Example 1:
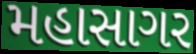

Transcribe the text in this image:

મહાસાગર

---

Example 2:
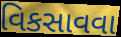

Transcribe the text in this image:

વિકસાવવા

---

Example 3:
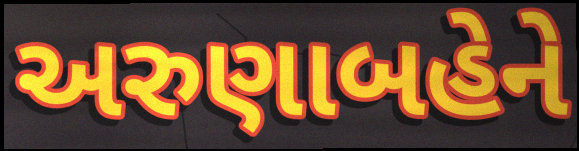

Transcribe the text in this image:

અરુણાબહેને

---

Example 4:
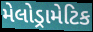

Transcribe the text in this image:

મેલોડ્રામેટિક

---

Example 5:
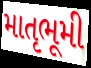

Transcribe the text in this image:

માતૃભૂમી